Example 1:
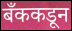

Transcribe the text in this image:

बँककडून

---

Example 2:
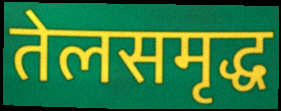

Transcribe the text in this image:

तेलसमृद्ध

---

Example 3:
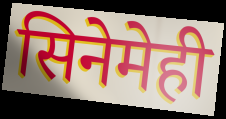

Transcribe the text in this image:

सिनेमेही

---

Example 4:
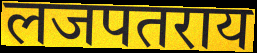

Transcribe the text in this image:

लजपतराय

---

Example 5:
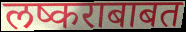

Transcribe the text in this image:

लष्कराबाबत